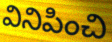
వినిపించి